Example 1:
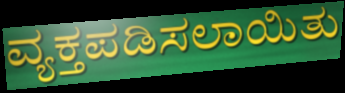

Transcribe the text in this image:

ವ್ಯಕ್ತಪಡಿಸಲಾಯಿತು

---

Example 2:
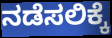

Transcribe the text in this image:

ನಡೆಸಲಿಕ್ಕೆ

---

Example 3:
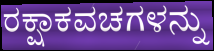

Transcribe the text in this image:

ರಕ್ಷಾಕವಚಗಳನ್ನು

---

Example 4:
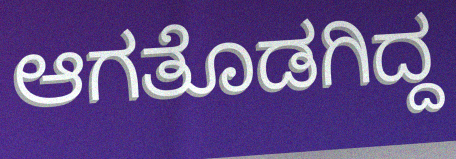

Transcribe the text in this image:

ಆಗತೊಡಗಿದ್ದ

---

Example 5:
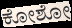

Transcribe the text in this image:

ಕೋಶೋ